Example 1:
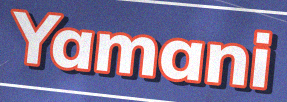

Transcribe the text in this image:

Yamani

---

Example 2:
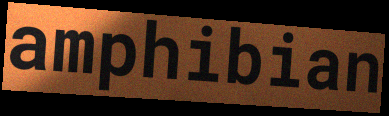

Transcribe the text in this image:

amphibian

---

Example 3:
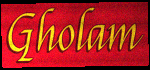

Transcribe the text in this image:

Gholam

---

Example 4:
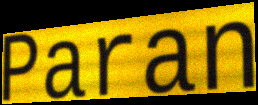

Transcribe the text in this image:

Paran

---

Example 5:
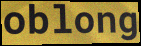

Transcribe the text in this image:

oblong